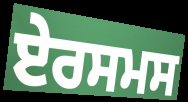
ਏਰਸਮਸ